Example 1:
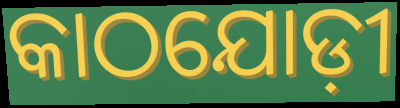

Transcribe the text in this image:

କାଠଯୋଡ଼ୀ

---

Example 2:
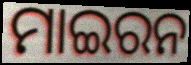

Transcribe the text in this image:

ମାଇରନ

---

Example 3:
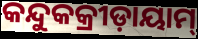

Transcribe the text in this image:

କନ୍ଦୁକକ୍ରୀଡ଼ାୟାମ୍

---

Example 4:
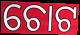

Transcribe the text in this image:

ଚୋଟ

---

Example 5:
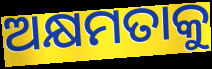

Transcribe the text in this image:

ଅକ୍ଷମତାକୁ